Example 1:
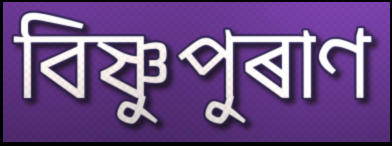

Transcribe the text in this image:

বিষ্ণুপুৰাণ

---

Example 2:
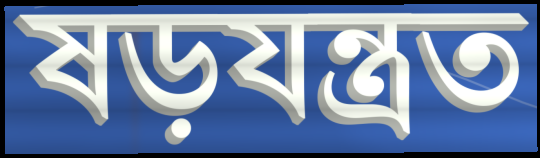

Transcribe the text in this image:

ষড়যন্ত্ৰত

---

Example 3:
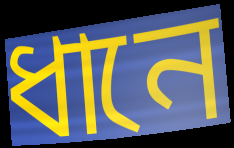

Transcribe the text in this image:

ধানে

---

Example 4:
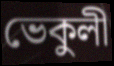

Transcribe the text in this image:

ভেকুলী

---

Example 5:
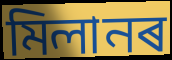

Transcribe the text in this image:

মিলানৰ